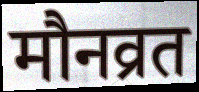
मौनव्रत